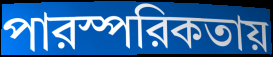
পারস্পরিকতায়